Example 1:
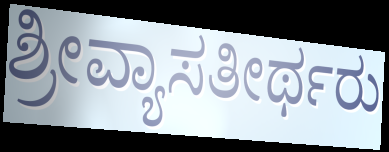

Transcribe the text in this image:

ಶ್ರೀವ್ಯಾಸತೀರ್ಥರು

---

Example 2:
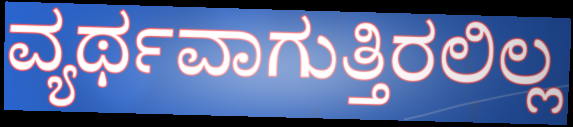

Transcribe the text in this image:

ವ್ಯರ್ಥವಾಗುತ್ತಿರಲಿಲ್ಲ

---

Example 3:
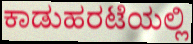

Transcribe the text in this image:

ಕಾಡುಹರಟೆಯಲ್ಲಿ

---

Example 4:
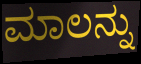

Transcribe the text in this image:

ಮಾಲನ್ನು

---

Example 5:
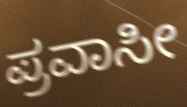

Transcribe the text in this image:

ಪ್ರವಾಸೀ